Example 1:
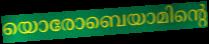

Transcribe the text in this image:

യൊരോബെയാമിന്റെ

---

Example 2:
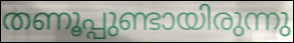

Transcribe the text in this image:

തണൂപ്പുണ്ടായിരുന്നു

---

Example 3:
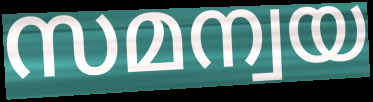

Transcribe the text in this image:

സമന്വയ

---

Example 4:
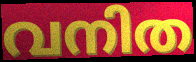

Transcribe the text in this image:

വനിത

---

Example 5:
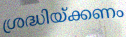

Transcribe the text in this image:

ശ്രദ്ധിയ്ക്കണം